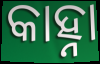
କାହ୍ନା